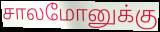
சாலமோனுக்கு